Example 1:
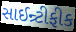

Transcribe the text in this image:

સાઈન્ર્ટીફીક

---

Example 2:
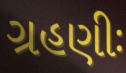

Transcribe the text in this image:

ગ્રહણીઃ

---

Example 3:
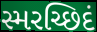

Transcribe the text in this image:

સ્મરચ્છિદં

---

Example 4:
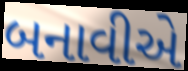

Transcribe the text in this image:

બનાવીએ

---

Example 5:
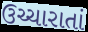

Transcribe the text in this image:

ઉચ્ચારાતાં